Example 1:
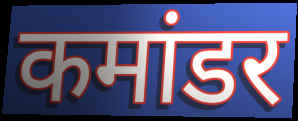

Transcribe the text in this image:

कमांडर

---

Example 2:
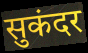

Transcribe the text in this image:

सुकंदर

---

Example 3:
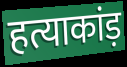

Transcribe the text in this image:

हत्याकांड़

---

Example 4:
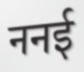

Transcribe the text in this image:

ननई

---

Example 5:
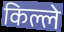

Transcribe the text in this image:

किल्ले